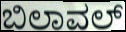
ಬಿಲಾವಲ್